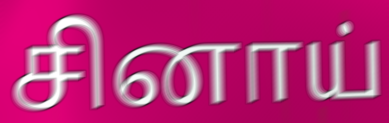
சினாய்